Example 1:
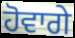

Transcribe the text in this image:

ਹੋਵਾਗੇ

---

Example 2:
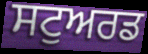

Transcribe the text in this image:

ਸਟੁਅਰਡ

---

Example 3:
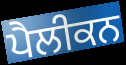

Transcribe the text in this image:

ਪੈਲੀਕਨ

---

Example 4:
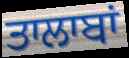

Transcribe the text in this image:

ਤਾਲਾਬਾਂ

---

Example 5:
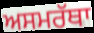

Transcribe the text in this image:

ਅਸਮਰੱਥਾ